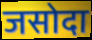
जसोदा